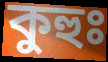
কুহুঃ